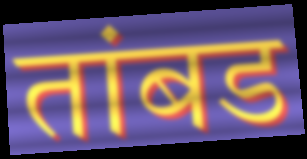
तांबड